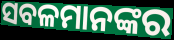
ସବଳମାନଙ୍କର